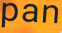
pan